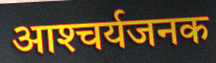
आश्‍चर्यजनक